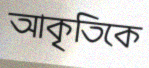
আকৃতিকে